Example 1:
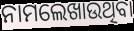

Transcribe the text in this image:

ନାମଲେଖାଉଥିବା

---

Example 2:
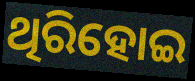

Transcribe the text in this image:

ଥିରିହୋଇ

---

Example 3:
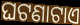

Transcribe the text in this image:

ଘଟଣାଟାଏ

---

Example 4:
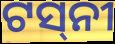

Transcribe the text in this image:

ଟସ୍‌ନୀ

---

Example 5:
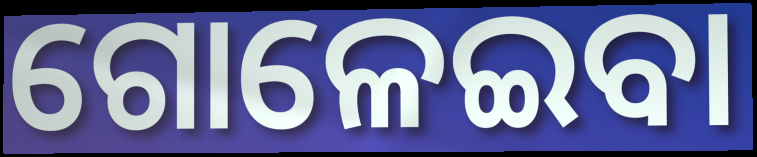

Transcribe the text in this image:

ଗୋଳେଇବା